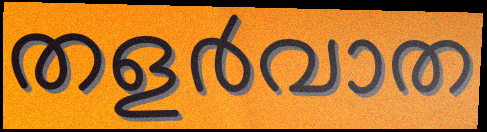
തളർവാത